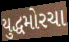
યુદ્ધમોરચા